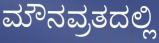
ಮೌನವ್ರತದಲ್ಲಿ